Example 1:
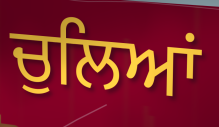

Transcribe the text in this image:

ਚੁਲਿਆਂ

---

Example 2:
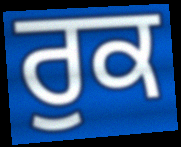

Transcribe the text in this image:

ਰੁਕ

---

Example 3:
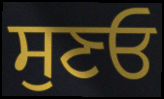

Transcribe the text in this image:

ਸੁਣਓ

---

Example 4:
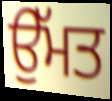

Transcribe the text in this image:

ਉੱਮਤ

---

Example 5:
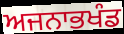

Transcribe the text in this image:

ਅਜਨਾਭਖੰਡ